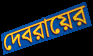
দেবরায়ের